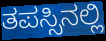
ತಪಸ್ಸಿನಲ್ಲಿ